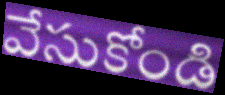
వేసుకోండి